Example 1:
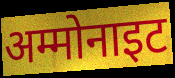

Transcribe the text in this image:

अम्मोनाइट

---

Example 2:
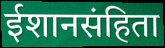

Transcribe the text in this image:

ईशानसंहिता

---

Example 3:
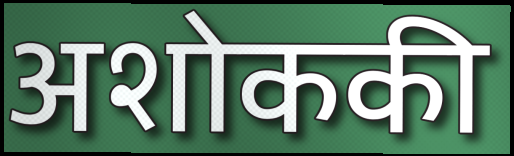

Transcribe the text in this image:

अशोककी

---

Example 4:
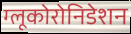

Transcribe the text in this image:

ग्लूकोरोनिडेशन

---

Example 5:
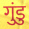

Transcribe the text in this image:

गुंडु